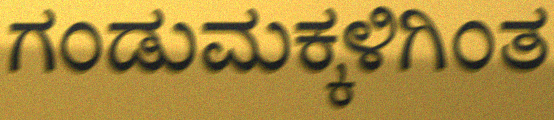
ಗಂಡುಮಕ್ಕಳಿಗಿಂತ